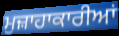
ਮੁਜ਼ਾਹਾਕਾਰੀਆਂ